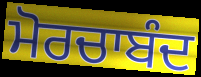
ਮੋਰਚਾਬੰਦ